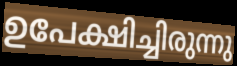
ഉപേക്ഷിച്ചിരുന്നു